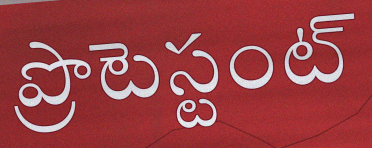
ప్రొటెస్టంట్